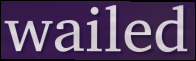
wailed